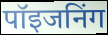
पॉइजनिंग